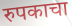
रुपकाचा